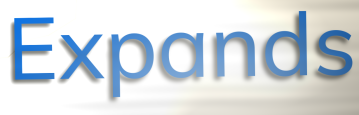
Expands